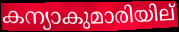
കന്യാകുമാരിയില്